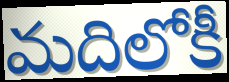
మదిలోకీ